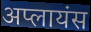
अप्‍लायंस